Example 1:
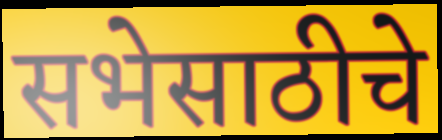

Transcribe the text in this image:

सभेसाठीचे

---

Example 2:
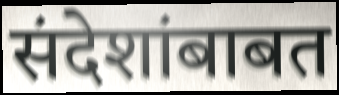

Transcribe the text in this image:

संदेशांबाबत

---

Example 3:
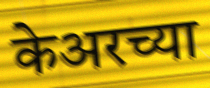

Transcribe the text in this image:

केअरच्या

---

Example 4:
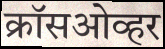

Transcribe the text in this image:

क्रॉसओव्हर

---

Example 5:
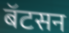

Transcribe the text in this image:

बॅटसन